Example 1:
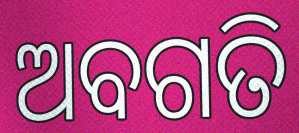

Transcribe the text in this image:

ଅବଗତି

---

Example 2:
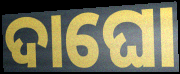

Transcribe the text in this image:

ଦାଘୋ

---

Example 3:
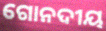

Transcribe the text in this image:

ଗୋନଦୀୟ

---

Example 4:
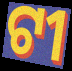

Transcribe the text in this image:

ଟୀ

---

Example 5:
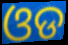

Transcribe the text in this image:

ଓଡ